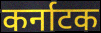
कर्नाटक